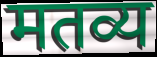
मतव्य